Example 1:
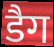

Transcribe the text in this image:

डैग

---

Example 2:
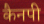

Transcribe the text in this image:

कैनपी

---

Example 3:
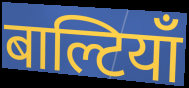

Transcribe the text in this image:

बाल्टियाँ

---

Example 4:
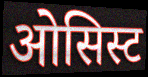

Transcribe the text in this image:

ओसिस्ट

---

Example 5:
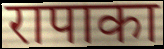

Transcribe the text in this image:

रापाका